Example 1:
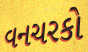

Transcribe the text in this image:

વનચરકો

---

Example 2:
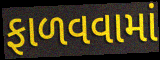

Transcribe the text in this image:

ફાળવવામાં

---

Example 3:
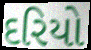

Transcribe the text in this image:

દરિયો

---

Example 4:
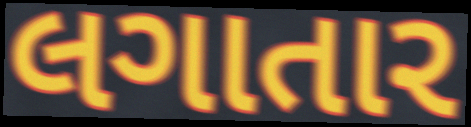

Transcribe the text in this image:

લગાતાર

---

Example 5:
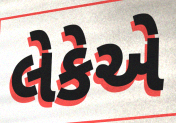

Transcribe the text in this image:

લેકેએ